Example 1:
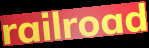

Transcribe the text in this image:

railroad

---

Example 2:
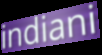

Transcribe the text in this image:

indiani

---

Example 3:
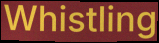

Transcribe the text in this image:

Whistling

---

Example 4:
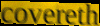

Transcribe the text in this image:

covereth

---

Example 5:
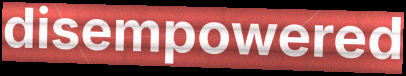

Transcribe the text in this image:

disempowered